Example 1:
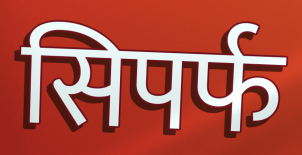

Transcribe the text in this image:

सिपर्फ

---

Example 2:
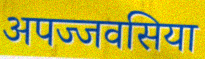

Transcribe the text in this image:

अपज्जवसिया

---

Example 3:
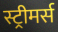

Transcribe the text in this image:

स्ट्रीमर्स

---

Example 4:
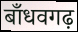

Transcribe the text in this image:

बाँधवगढ़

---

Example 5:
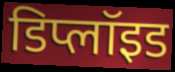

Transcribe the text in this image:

डिप्लॉइड